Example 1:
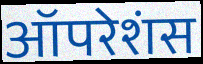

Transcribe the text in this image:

ऑपरेशंस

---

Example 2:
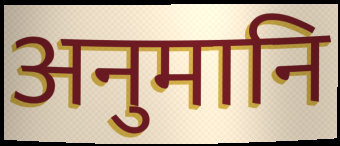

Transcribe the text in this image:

अनुमानि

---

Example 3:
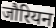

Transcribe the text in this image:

जौरियन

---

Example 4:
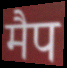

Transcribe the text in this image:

मैप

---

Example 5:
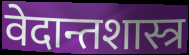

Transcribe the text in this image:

वेदान्तशास्त्र